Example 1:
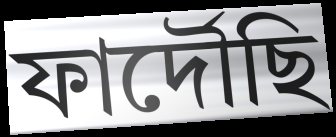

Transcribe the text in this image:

ফাৰ্দৌছি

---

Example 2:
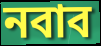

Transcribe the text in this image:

নবাব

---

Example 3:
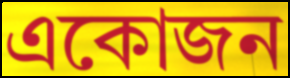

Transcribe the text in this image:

একোজন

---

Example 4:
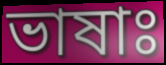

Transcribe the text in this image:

ভাষাঃ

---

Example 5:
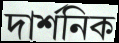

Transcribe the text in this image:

দাৰ্শনিক